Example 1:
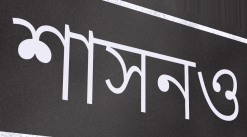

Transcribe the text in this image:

শাসনও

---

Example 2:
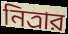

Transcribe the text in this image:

নিত্রার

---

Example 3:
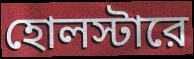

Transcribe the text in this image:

হোলস্টারে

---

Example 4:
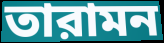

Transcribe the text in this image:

তারামন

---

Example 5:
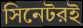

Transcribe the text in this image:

সিনেটরই